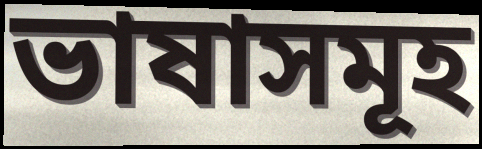
ভাষাসমূহ